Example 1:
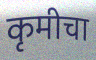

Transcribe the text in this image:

कृमीचा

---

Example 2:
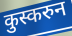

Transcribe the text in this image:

कुस्करुन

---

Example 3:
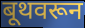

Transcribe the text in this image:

बूथवरून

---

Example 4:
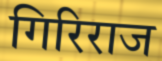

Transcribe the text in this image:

गिरिराज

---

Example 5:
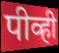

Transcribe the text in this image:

पीव्ही